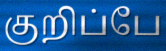
குறிப்பே